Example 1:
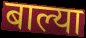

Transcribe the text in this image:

बाल्या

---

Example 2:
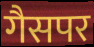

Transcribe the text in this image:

गैसपर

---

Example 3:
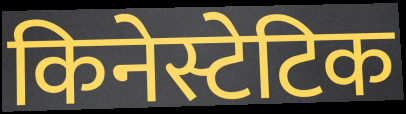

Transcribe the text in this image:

किनेस्टेटिक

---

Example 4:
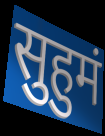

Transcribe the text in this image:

सुहुमं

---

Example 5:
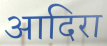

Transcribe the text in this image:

आदिरा